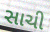
સાચી